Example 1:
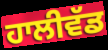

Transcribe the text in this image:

ਹਾਲੀਵੱਡ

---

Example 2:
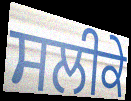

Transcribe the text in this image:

ਸਲੀਕੇ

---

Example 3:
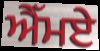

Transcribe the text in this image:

ਐੱਮਏ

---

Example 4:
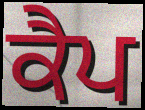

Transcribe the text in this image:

ਕੈਪ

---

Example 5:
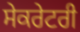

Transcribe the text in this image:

ਸੇਕਰੇਟਰੀ